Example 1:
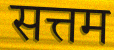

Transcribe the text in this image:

सत्तम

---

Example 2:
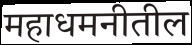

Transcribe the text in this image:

महाधमनीतील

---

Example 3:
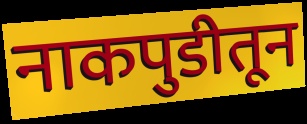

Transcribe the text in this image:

नाकपुडीतून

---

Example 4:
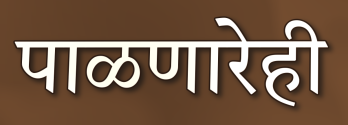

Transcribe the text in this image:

पाळणारेही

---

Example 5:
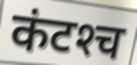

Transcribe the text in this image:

कंटश्च